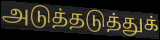
அடுத்தடுத்துக்